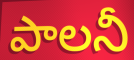
పాలనీ